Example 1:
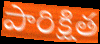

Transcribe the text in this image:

పారిక్షిత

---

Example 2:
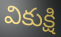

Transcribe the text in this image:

వికుక్షి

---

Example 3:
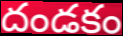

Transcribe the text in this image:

దండకం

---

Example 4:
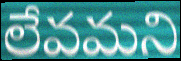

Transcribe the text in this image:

లేవమని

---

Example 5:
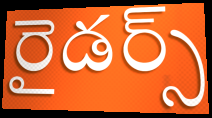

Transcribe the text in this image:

రైడర్స్